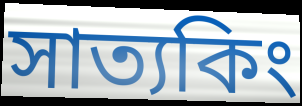
সাত্যকিং